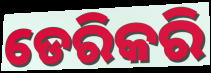
ଡେରିକରି